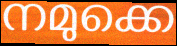
നമുക്കെ